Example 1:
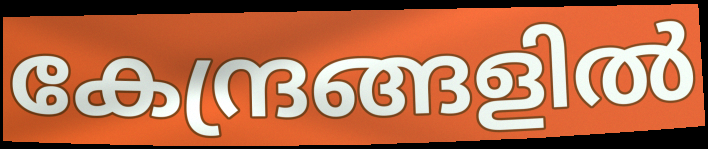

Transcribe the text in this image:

കേന്ദ്രങ്ങളിൽ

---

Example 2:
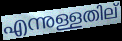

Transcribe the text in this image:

എന്നുള്ളതില്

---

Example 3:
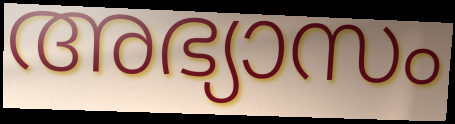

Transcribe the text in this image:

അഭ്യാസം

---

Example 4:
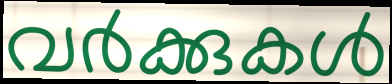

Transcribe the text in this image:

വർക്കുകൾ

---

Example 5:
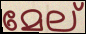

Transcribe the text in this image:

മേല്